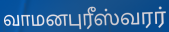
வாமனபுரீஸ்வரர்